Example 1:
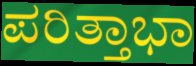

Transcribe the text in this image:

ಪರಿತ್ತಾಭಾ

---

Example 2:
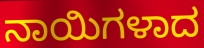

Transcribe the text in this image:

ನಾಯಿಗಳಾದ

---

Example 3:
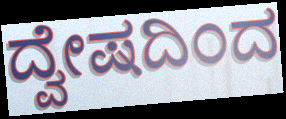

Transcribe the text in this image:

ದ್ವೇಷದಿಂದ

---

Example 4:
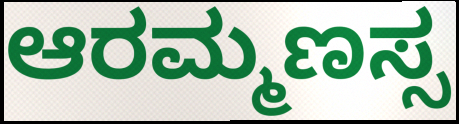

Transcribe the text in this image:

ಆರಮ್ಮಣಸ್ಸ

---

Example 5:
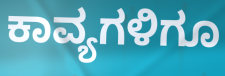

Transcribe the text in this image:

ಕಾವ್ಯಗಳಿಗೂ